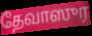
தேவாஸுர